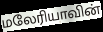
மலேரியாவின்